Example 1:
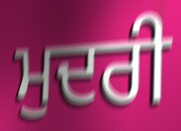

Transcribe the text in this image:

ਮੁਦਰੀ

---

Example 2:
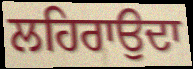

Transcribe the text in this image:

ਲਹਿਰਾਉਦਾ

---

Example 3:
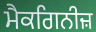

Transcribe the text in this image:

ਮੈਕਗਿਨੀਜ਼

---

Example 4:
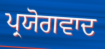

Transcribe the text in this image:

ਪ੍ਰਯੋਗਵਾਦ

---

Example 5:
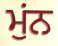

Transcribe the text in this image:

ਮੁਂਨ